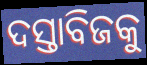
ଦସ୍ତାବିଜକୁ